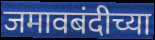
जमावबंदीच्या